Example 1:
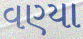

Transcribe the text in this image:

વણ્યા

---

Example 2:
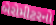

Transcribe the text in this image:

બેરોમીટરનો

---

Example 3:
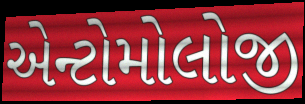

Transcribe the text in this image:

એન્ટોમોલોજી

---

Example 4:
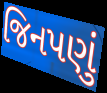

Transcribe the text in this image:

જિનપણું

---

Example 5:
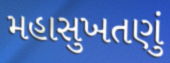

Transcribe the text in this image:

મહાસુખતણું